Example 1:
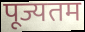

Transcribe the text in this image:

पूज्यतम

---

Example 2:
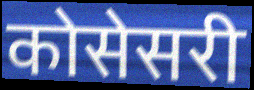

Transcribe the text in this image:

कोसेसरी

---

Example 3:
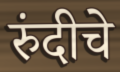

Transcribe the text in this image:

रुंदीचे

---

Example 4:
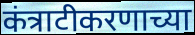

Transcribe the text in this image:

कंत्राटीकरणाच्या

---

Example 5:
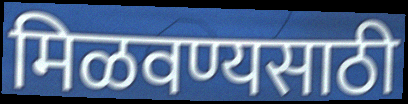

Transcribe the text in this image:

मिळवण्यसाठी